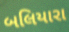
બલિયારા